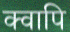
क्वापि